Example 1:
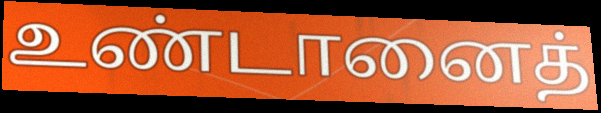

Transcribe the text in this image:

உண்டானைத்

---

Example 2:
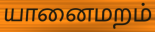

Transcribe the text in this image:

யானைமறம்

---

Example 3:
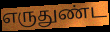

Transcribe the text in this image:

எருதுண்ட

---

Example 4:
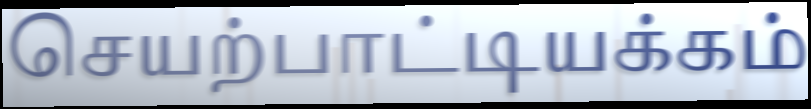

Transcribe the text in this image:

செயற்பாட்டியக்கம்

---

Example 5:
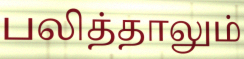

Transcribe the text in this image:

பலித்தாலும்